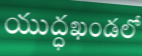
యుద్ధఖండలో